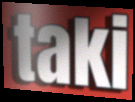
taki